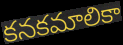
కనకమాలికా